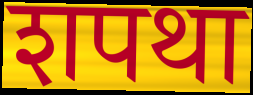
शपथा